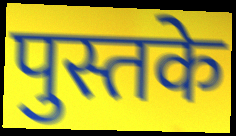
पुस्तके